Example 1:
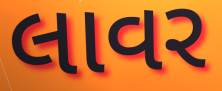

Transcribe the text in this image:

લાવર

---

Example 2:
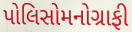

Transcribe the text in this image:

પોલિસોમનોગ્રાફી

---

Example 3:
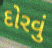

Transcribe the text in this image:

દોરવું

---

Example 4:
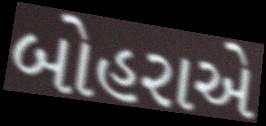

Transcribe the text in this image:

બોહરાએ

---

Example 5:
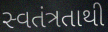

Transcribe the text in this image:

સ્વતંત્રતાથી